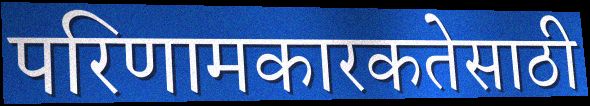
परिणामकारकतेसाठी